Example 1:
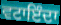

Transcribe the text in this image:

ਵਟਾਇੰਦਾ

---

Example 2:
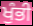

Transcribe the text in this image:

ਖੁੰਭੀ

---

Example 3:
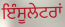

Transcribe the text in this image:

ਇੰਸੂਲੇਟਰਾਂ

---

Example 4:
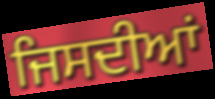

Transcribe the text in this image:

ਜਿਸਦੀਆਂ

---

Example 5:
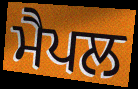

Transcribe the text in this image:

ਮੈਪਲ